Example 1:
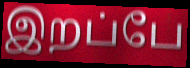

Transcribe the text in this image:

இறப்பே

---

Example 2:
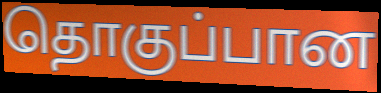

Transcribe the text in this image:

தொகுப்பான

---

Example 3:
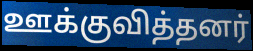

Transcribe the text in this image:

ஊக்குவித்தனர்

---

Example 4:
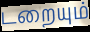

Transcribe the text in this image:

டறையும்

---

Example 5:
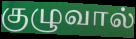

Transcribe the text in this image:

குழுவால்